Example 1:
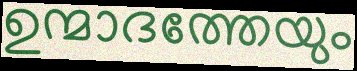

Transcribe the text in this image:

ഉന്മാദത്തേയും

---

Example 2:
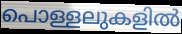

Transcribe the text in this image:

പൊള്ളലുകളിൽ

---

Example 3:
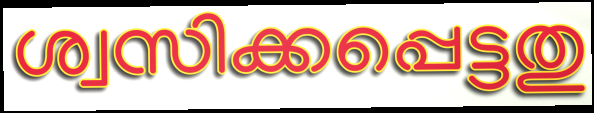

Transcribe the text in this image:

ശ്വസിക്കപ്പെട്ടതു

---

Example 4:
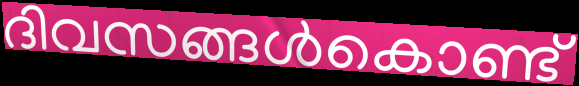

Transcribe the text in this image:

ദിവസങ്ങൾകൊണ്ട്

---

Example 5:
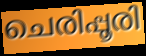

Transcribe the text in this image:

ചെരിപ്പൂരി